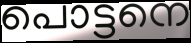
പൊട്ടനെ